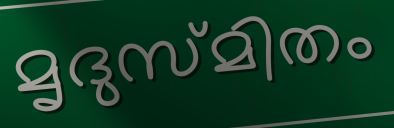
മൃദുസ്മിതം